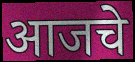
आजचे